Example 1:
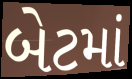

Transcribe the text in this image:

બેટમાં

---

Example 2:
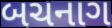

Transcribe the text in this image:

બચનાગ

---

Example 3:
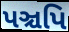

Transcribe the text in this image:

પઞ્ચપિ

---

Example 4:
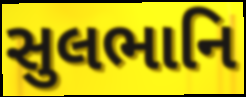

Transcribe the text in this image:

સુલભાનિ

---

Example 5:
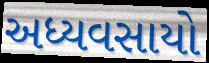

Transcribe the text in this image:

અધ્યવસાયો